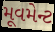
મૂવમેન્ટ